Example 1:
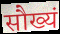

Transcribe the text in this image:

सौख्यं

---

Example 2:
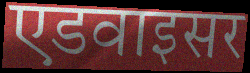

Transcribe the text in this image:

एडवाइसर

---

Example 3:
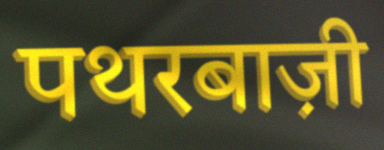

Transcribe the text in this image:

पथरबाज़ी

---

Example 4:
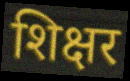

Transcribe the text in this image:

शिक्षर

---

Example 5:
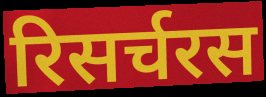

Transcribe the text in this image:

रिसर्चरस